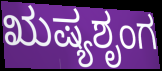
ಋಷ್ಯಶೃಂಗ